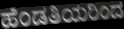
ಹೆಂಡತಿಯರಿಂದ